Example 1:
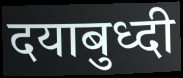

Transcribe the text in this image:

दयाबुध्दी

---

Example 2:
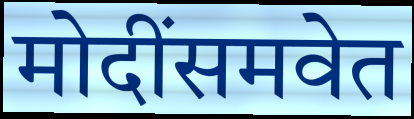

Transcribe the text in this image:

मोदींसमवेत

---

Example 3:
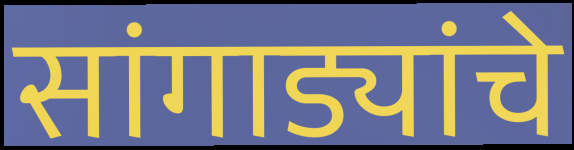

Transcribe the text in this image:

सांगाड्यांचे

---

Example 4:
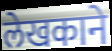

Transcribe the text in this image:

लेखकाने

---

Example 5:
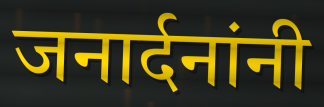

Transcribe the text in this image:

जनार्दनांनी